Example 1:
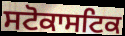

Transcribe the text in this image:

ਸਟੋਕਾਸਟਿਕ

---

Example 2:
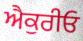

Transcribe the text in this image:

ਐਕੁਰੀਓ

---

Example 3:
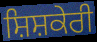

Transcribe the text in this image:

ਸ਼ਿਸ਼ਕੇਰੀ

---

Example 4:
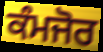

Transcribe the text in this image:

ਕੰਮਜੋਰ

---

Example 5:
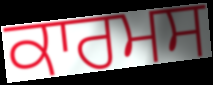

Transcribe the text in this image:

ਕਾਰਮਸ